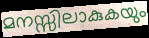
മനസ്സിലാകുകയും